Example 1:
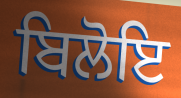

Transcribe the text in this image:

ਬਿਲੋਇ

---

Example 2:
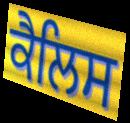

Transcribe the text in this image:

ਕੈਲਿਸ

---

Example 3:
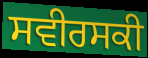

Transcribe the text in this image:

ਸਵੀਰਸਕੀ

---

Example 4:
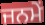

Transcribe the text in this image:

ਜਨਮੇਂ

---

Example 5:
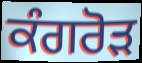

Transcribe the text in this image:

ਕੰਗਰੋੜ